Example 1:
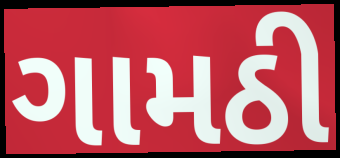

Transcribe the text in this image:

ગામઠી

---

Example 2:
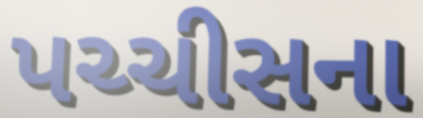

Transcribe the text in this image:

પચ્ચીસના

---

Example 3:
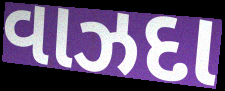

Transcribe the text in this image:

વાઝદા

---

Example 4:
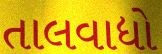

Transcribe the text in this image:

તાલવાદ્યો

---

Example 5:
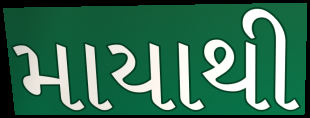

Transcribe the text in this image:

માયાથી